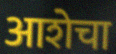
आशेचा